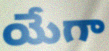
యేగా